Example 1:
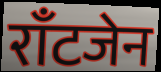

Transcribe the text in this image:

राँटजेन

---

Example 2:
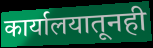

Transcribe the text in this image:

कार्यालयातूनही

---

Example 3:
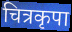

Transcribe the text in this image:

चित्रकृपा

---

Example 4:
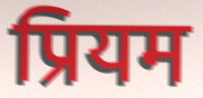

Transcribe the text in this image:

प्रियम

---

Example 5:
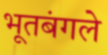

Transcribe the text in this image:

भूतबंगले